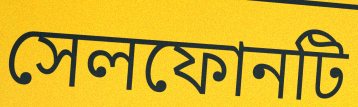
সেলফোনটি